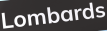
Lombards